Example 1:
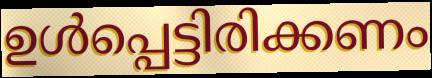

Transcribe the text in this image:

ഉൾപ്പെട്ടിരിക്കണം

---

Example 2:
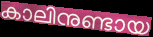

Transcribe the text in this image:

കാലിനുണ്ടായ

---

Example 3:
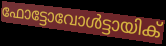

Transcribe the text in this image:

ഫോട്ടോവോൾട്ടായിക്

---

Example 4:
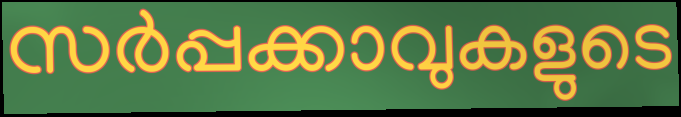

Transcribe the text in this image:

സർപ്പക്കാവുകളുടെ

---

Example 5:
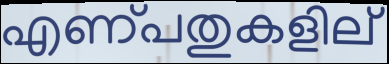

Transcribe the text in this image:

എണ്പതുകളില്